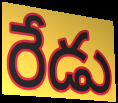
రేడు